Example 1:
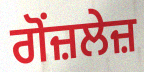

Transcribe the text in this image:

ਗੋਂਜ਼ਲੇਜ਼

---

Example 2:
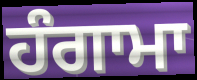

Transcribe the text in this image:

ਹੰਗਾਮਾ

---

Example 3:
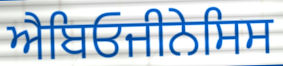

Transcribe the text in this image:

ਐਬਿਓਜੀਨੇਸਿਸ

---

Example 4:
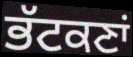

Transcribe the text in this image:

ਭੱਟਕਣਾਂ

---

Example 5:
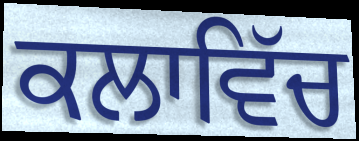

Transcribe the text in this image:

ਕਲਾਵਿੱਚ